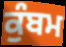
ਕੁੰਬਮ